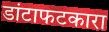
डांटाफटकारा